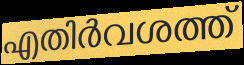
എതിർവശത്ത്